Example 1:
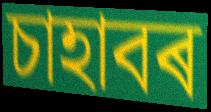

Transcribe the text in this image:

চাহাবৰ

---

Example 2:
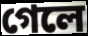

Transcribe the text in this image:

গেলে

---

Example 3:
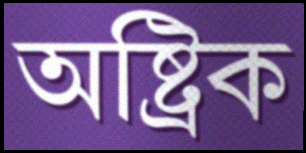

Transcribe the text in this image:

অষ্ট্ৰিক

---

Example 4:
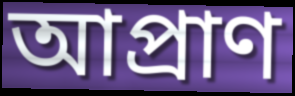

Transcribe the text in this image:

আপ্ৰাণ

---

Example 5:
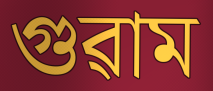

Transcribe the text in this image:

গুৱাম